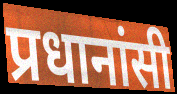
प्रधानांसी